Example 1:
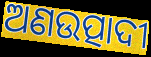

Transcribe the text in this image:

ଅଣଉତ୍ପାଦୀ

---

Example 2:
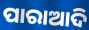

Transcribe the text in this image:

ପାରାଆଦି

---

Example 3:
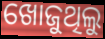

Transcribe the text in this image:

ଖୋଜୁଥିଲୁ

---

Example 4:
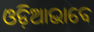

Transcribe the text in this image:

ଓଡ଼ିଆଭାବେ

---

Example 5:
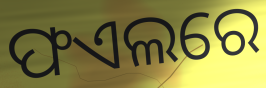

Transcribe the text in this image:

ଫଏଲରେ